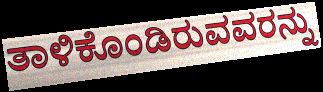
ತಾಳಿಕೊಂಡಿರುವವರನ್ನು